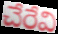
చేరేవి